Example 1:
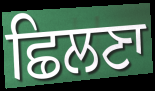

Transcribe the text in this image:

ਛਿਲਣਾ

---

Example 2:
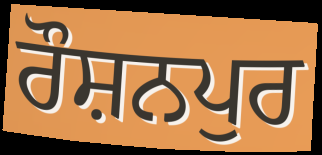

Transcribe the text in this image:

ਰੌਸ਼ਨਪੁਰ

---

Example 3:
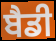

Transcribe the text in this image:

ਬੈਡੀ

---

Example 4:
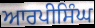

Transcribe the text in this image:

ਆਰਪੀਸਿੰਘ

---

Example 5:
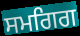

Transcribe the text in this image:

ਸਮਗਿਗ